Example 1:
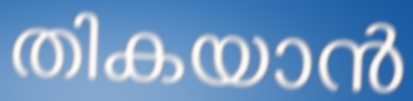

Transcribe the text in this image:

തികയാൻ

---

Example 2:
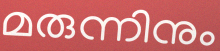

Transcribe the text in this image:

മരുന്നിനും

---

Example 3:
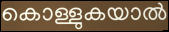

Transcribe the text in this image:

കൊള്ളുകയാൽ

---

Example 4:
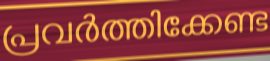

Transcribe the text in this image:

പ്രവർത്തിക്കേണ്ട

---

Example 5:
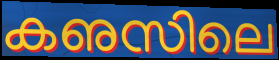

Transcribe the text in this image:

കഌസിലെ